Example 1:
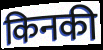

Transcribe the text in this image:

किनकी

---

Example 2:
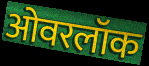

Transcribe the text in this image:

ओवरलॉक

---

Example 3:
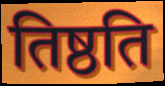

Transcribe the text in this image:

तिष्ठति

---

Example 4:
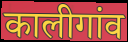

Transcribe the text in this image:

कालीगांव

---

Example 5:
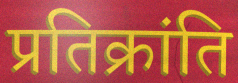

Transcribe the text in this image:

प्रतिक्रांति